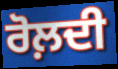
ਰੋਲ਼ਦੀ